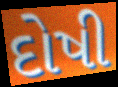
દોષી